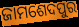
ଜାମଶେଦପୁର